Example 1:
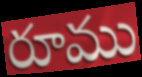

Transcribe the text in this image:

రూము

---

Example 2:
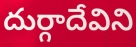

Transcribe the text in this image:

దుర్గాదేవిని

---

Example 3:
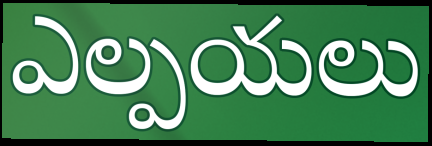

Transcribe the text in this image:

ఎల్పయలు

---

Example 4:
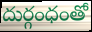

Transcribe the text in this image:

దుర్గంధంతో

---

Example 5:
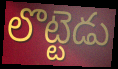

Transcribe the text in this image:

లొట్టెడు